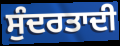
ਸੁੰਦਰਤਾਦੀ